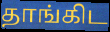
தாங்கிட